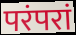
परंपरां